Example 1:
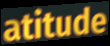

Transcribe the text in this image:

atitude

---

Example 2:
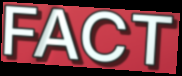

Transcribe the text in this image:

FACT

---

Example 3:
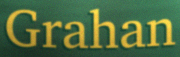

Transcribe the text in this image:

Grahan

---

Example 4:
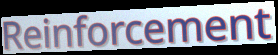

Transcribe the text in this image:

Reinforcement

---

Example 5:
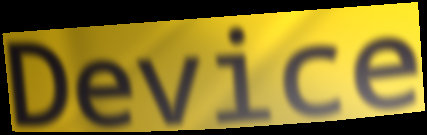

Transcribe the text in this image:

Device